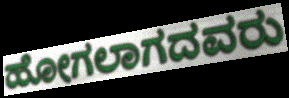
ಹೋಗಲಾಗದವರು